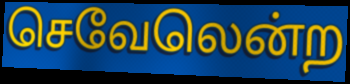
செவேலென்ற